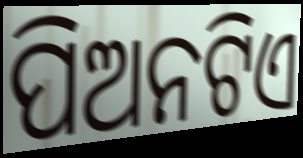
ପିଅନଟିଏ